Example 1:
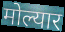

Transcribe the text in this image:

मोल्यार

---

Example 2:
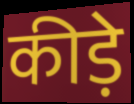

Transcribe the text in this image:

कीड़े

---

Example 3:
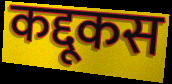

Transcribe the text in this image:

कद्दूकस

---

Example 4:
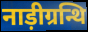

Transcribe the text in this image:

नाड़ीग्रन्थि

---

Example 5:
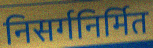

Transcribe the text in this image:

निसर्गनिर्मित